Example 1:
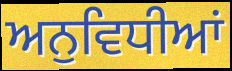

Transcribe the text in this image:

ਅਨੁਵਿਧੀਆਂ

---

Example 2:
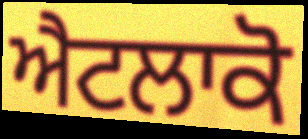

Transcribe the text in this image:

ਐਟਲਾਕੋ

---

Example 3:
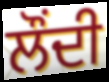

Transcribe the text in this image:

ਲੌਂਦੀ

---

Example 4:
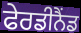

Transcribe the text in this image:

ਫੇਰਡੀਨੈਂਡ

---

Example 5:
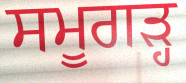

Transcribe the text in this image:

ਸਮੂਗੜ੍ਹ